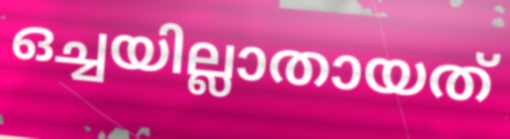
ഒച്ചയില്ലാതായത്